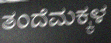
ತಂದೆಮಕ್ಕಳ